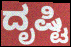
ದೃಷ್ಟಿ